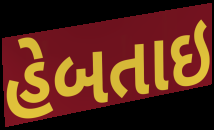
હેબતાઇ